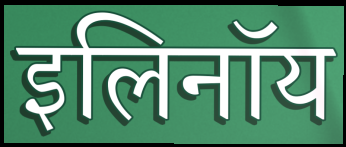
इलिनॉय